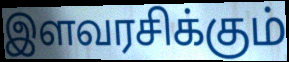
இளவரசிக்கும்